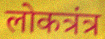
लोकत्रंत्र